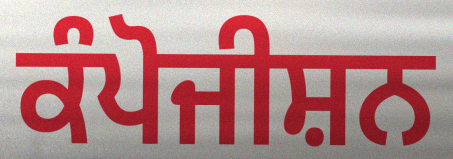
ਕੰਪੋਜੀਸ਼ਨ